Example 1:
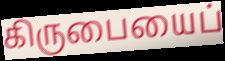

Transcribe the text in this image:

கிருபையைப்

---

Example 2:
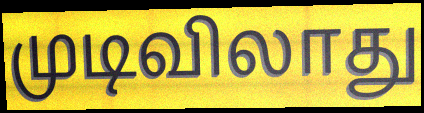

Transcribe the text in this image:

முடிவிலாது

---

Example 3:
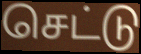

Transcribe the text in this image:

செட்டு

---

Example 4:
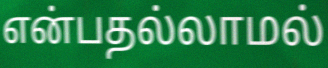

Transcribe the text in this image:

என்பதல்லாமல்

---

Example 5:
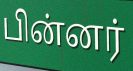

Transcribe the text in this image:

பின்னர்